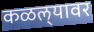
कळल्यावर